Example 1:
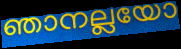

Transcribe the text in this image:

ഞാനല്ലയോ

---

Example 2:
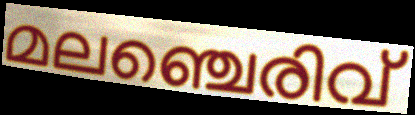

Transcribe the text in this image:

മലഞ്ചെരിവ്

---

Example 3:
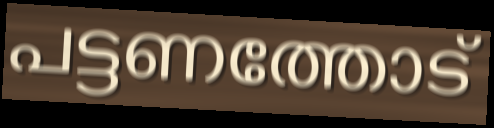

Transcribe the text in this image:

പട്ടണത്തോട്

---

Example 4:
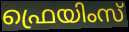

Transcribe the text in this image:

ഫ്രെയിംസ്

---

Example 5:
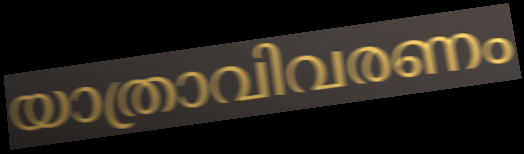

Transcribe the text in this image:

യാത്രാവിവരണം